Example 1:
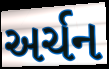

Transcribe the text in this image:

અર્ચન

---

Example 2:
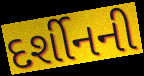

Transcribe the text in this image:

દર્શીનની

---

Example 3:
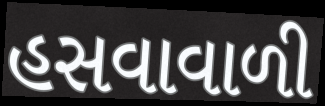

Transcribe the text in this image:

હસવાવાળી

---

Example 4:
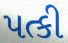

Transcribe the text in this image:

પત્કી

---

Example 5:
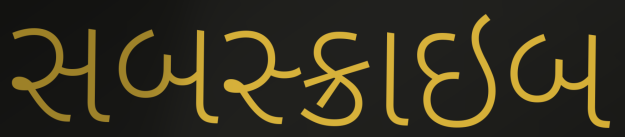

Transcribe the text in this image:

સબસ્ક્રાઇબ